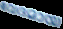
വേദമായ